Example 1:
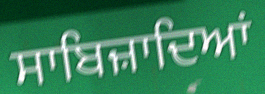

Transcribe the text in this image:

ਸਾਬਿਜ਼ਾਦਿਆਂ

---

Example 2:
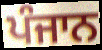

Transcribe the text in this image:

ਪੰਜਾਨ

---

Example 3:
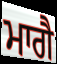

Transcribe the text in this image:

ਮਾਗੈ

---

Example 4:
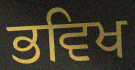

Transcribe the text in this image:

ਭਵਿਖ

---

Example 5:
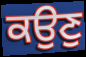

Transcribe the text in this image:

ਕਉਣੁ